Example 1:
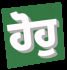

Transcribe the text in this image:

ਹੋਹੁ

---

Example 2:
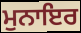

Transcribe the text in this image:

ਮੁਨਾਇਰ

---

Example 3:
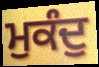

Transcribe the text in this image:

ਮੁਕੰਦੁ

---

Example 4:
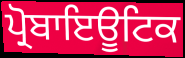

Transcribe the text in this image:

ਪ੍ਰੋਬਾਇਊਟਿਕ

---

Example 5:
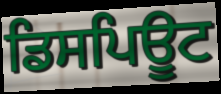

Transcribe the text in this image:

ਡਿਸਪਿਊਟ